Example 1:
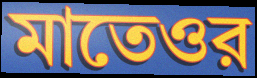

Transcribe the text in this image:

মাতেওর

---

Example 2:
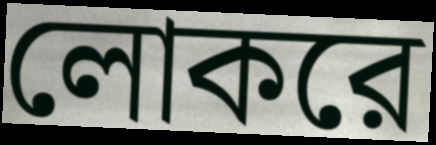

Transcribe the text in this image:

লোকরে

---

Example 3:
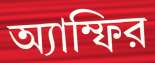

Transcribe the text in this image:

অ্যাম্ফির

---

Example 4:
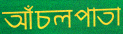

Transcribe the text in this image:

আঁচলপাতা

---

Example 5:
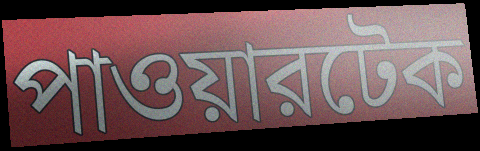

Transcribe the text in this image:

পাওয়ারটেক